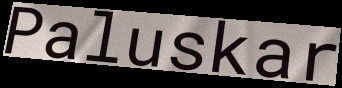
Paluskar